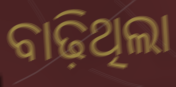
ବାଢ଼ିଥିଲା